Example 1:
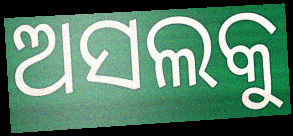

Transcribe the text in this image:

ଅସଲକୁ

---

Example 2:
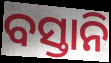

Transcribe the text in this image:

ବସ୍ତାନି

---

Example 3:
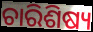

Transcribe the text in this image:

ଚାରିଶିଷ୍ୟ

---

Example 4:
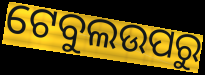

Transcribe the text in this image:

ଟେବୁଲଉପରୁ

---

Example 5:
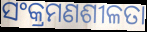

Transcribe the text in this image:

ସଂକ୍ରମଣଶୀଳତା